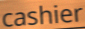
cashier